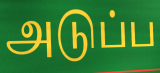
அடுப்ப